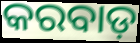
କରବାଡ଼